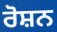
ਰੋਸ਼ਨ